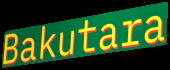
Bakutara